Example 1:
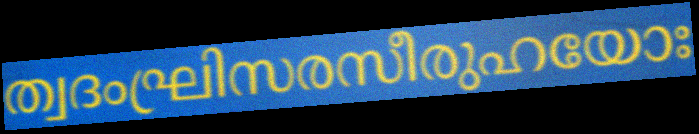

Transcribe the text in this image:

ത്വദംഘ്രിസരസീരുഹയോഃ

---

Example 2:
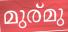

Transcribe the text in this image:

മുര്മു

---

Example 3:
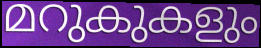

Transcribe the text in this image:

മറുകുകളും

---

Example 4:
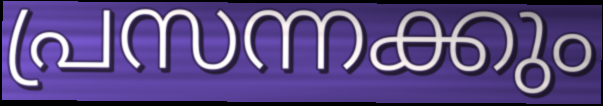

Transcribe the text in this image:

പ്രസന്നക്കും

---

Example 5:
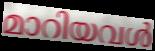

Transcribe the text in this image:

മാറിയവൾ